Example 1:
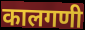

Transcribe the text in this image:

कालगणी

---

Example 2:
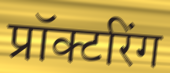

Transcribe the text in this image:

प्रॉक्टरिंग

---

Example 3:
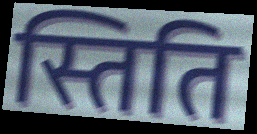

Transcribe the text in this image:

स्तिति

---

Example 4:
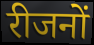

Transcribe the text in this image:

रीजनों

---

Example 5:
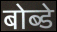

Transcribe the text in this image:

बोब्डे